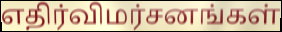
எதிர்விமர்சனங்கள்